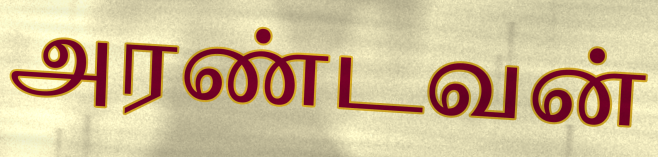
அரண்டவன்